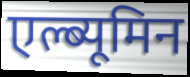
एल्ब्यूमिन